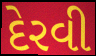
દેરવી